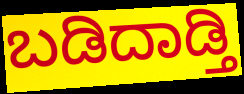
ಬಡಿದಾಡ್ತಿ